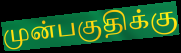
முன்பகுதிக்கு